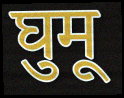
घुमू